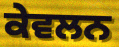
ਕੇਵਲਨ